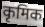
कृमिक